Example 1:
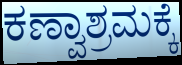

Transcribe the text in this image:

ಕಣ್ವಾಶ್ರಮಕ್ಕೆ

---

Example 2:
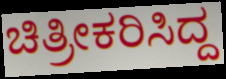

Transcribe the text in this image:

ಚಿತ್ರೀಕರಿಸಿದ್ದ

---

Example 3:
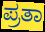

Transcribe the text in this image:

ಪ್ರತಾ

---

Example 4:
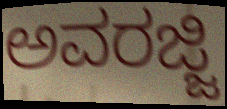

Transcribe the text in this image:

ಅವರಜ್ಜಿ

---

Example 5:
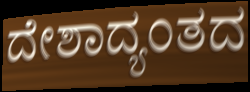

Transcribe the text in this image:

ದೇಶಾದ್ಯಂತದ